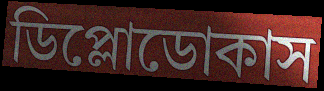
ডিপ্লোডোকাস